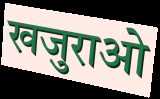
खजुराओ